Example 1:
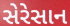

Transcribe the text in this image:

સેરેસાન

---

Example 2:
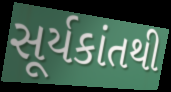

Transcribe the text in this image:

સૂર્યકાંતથી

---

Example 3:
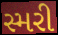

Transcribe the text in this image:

સ્મરી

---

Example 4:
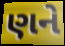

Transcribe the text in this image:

ણને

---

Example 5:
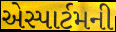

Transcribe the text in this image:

એસ્પાર્ટમની